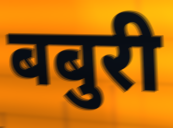
बबुरी